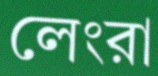
লেংরা